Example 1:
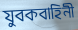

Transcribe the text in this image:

যুবকবাহিনী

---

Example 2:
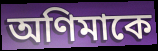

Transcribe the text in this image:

অণিমাকে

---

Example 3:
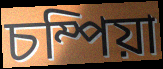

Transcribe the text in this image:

চম্পিয়া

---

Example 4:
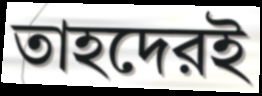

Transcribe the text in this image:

তাহদেরই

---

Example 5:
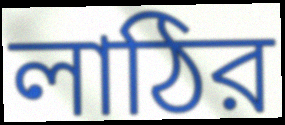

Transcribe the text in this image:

লাঠির